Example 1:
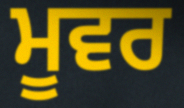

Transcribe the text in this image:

ਮੂਵਰ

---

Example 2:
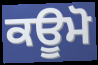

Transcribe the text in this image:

ਕਊਮੋ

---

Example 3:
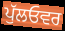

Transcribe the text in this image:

ਪੁੱਲਓਵਰ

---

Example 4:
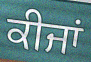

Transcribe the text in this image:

ਕੀਜਾਂ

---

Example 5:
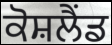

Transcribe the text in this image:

ਕੋਸ਼ਲੈਂਡ